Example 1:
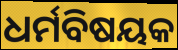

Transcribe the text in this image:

ଧର୍ମବିଷୟକ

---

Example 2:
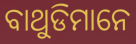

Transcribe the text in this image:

ବାଥୁଡିମାନେ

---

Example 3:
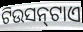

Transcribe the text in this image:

ଟିଉସନ୍‍ଟାଏ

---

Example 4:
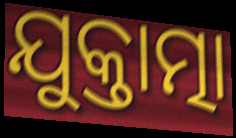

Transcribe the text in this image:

ଯୁକ୍ତାତ୍ମା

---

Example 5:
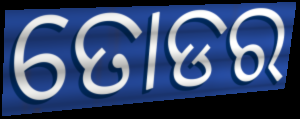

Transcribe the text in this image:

ତୋଡର